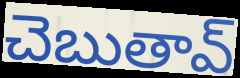
చెబుతావ్